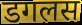
डगलस